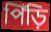
পিঁড়ি